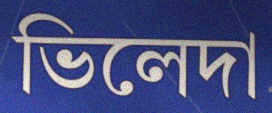
ভিলেদা